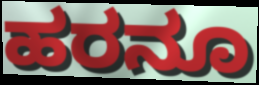
ಹರನೂ